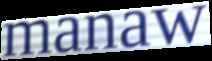
manaw